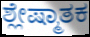
ಶ್ಲೇಷ್ಮಾತಕ